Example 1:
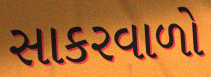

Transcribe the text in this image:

સાકરવાળો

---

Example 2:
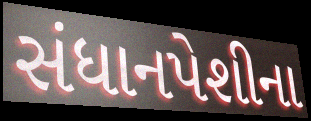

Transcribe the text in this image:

સંધાનપેશીના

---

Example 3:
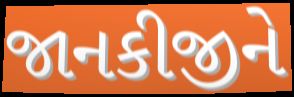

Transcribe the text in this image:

જાનકીજીને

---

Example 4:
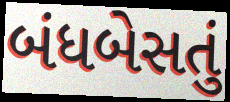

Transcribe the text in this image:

બંધબેસતું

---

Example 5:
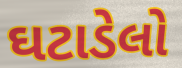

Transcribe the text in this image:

ઘટાડેલો